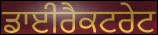
ਡਾਈਰੈਕਟਰੇਟ